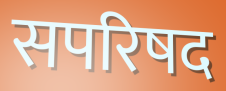
सपरिषद